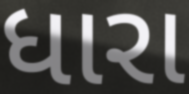
ધારા